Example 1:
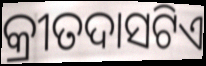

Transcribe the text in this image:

କ୍ରୀତଦାସଟିଏ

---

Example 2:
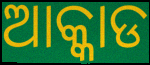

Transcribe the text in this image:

ଆକ୍କାଡ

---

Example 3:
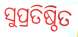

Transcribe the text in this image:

ସୁପ୍ରତିଷ୍ଠିତ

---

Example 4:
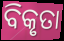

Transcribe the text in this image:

ବିକୃତା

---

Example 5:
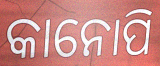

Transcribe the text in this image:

କାନୋପି